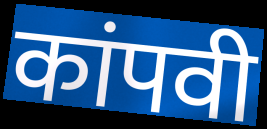
कांपवी